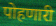
पोहणारी